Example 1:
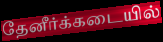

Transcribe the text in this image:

தேனீர்க்கடையில்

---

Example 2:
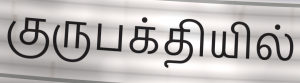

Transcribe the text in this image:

குருபக்தியில்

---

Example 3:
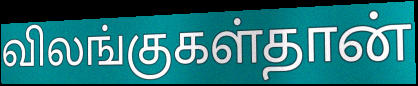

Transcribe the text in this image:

விலங்குகள்தான்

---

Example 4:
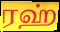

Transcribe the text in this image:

ரஹ்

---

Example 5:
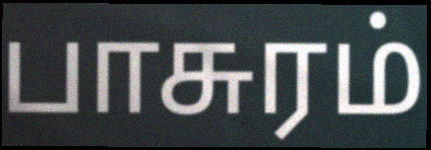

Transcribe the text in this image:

பாசுரம்